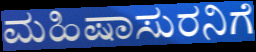
ಮಹಿಷಾಸುರನಿಗೆ